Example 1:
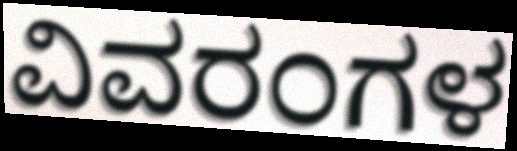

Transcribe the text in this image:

ವಿವರಂಗಳ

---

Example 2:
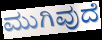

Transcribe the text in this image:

ಮುಗಿವುದೆ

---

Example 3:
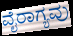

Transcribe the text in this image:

ವೈರಾಗ್ಯವು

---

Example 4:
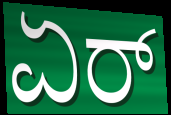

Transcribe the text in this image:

ಏರ್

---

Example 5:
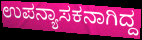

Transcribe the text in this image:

ಉಪನ್ಯಾಸಕನಾಗಿದ್ದ